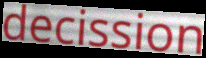
decission